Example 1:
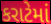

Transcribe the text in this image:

કરાટેમાં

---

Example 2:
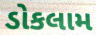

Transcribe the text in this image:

ડોકલામ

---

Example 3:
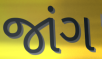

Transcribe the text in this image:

જાંગ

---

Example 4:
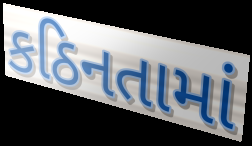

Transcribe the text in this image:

કઠિનતામાં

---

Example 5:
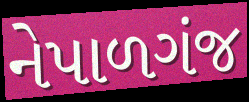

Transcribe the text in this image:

નેપાળગંજ